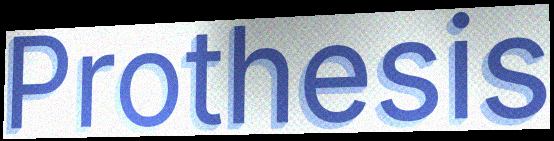
Prothesis